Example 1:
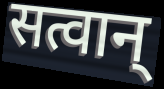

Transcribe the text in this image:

सत्वान्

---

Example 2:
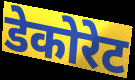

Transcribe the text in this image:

डेकोरेट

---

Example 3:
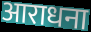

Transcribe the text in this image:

आराधना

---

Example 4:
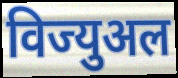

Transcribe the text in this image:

विज्युअल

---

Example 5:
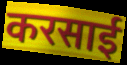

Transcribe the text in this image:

करसाई